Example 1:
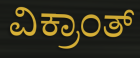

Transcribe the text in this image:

ವಿಕ್ರಾಂತ್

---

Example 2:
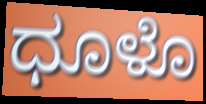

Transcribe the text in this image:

ಧೂಳೊ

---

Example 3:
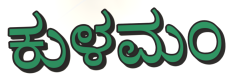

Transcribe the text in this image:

ಕುಳಮಂ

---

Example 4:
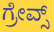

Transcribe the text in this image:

ಗ್ರೇವ್ಸ್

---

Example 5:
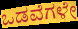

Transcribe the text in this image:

ಒಡವೆಗಳೇ